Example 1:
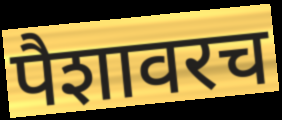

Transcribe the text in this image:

पैशावरच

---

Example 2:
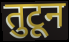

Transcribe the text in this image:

तुटून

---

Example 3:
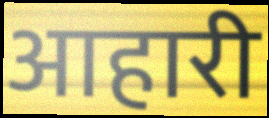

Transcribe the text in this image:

आहारी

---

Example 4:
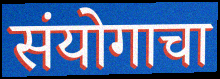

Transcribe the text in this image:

संयोगाचा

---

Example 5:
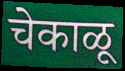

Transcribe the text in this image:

चेकाळू